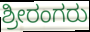
ಶ್ರೀರಂಗರು